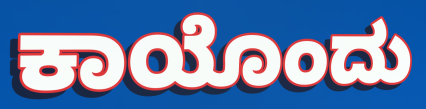
ಕಾಯೊಂದು